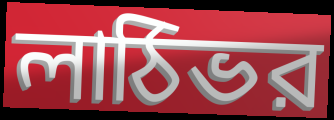
লাঠিভর